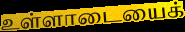
உள்ளாடையைக்